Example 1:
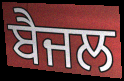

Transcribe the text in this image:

ਬੈਜਲ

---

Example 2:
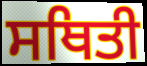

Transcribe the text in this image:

ਸਥਿਤੀ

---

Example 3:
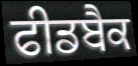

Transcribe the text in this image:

ਫੀਡਬੈਕ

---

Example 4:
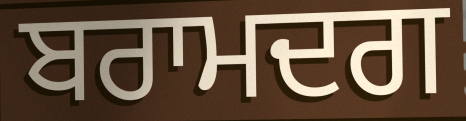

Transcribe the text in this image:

ਬਰਾਮਦਗ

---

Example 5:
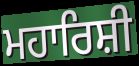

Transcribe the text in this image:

ਮਹਾਰਿਸ਼ੀ